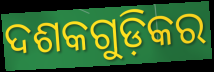
ଦଶକଗୁଡ଼ିକର